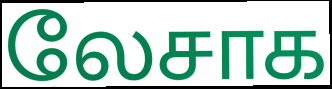
லேசாக